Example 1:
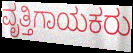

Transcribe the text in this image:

ವೃತ್ತಿಗಾಯಕರು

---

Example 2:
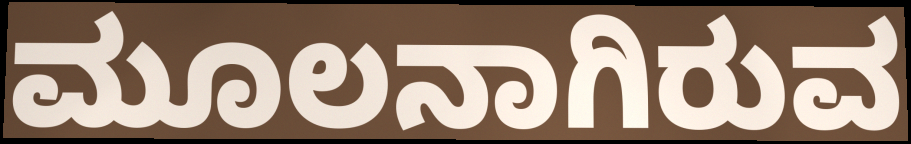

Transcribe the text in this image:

ಮೂಲನಾಗಿರುವ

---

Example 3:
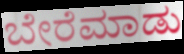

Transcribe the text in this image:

ಬೇರೆಮಾಡು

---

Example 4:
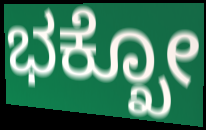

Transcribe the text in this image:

ಭಕ್ಖೋ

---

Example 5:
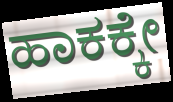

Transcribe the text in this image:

ಹಾಕಕ್ಕೇ